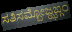
ಸತಿಸಮ್ಬೋಜ್ಝಙ್ಗಂ